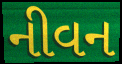
નીવન